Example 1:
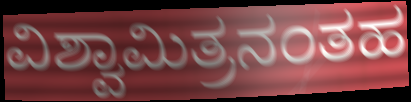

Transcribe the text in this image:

ವಿಶ್ವಾಮಿತ್ರನಂತಹ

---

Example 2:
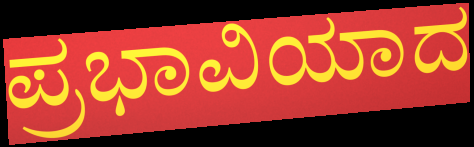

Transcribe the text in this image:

ಪ್ರಭಾವಿಯಾದ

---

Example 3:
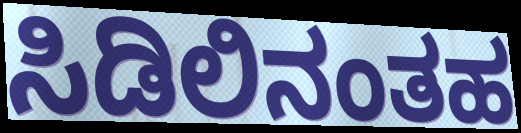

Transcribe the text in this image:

ಸಿಡಿಲಿನಂತಹ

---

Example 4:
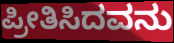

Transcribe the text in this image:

ಪ್ರೀತಿಸಿದವನು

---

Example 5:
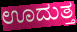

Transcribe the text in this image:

ಊದುತ್ತ